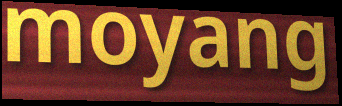
moyang